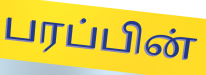
பரப்பின்